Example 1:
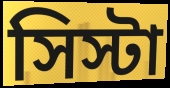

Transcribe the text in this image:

সিস্টা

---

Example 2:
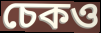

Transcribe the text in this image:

চেকও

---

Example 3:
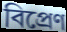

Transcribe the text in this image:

বিপ্রেণ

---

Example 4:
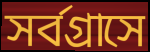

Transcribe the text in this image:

সর্বগ্রাসে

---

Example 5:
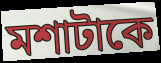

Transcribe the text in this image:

মশাটাকে